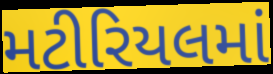
મટીરિયલમાં